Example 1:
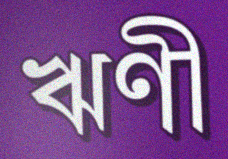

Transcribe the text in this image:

ঋণী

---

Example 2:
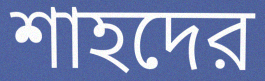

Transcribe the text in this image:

শাহদের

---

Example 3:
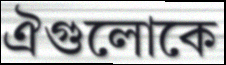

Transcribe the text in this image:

ঐগুলোকে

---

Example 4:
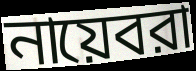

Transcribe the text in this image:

নায়েবরা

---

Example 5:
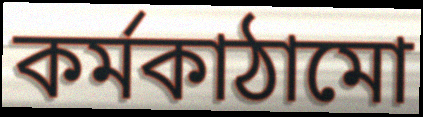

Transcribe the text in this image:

কর্মকাঠামো